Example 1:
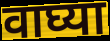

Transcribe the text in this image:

वाघ्या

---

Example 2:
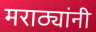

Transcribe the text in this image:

मराठ्यांनी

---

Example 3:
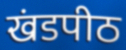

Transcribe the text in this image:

खंडपीठ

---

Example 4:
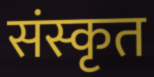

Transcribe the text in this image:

संस्‍कृत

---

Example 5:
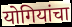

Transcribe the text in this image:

योगियांचा